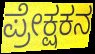
ಪ್ರೇಕ್ಷಕನ